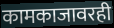
कामकाजावरही